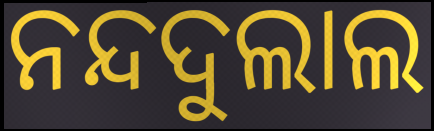
ନନ୍ଦଦୁଲାଲ